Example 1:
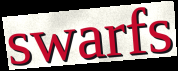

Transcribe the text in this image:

swarfs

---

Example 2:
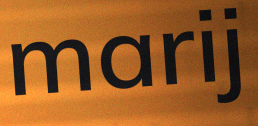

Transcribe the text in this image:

marij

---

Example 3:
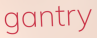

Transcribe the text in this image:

gantry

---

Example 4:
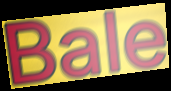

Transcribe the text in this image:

Bale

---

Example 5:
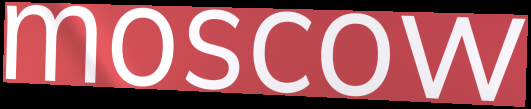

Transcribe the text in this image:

moscow